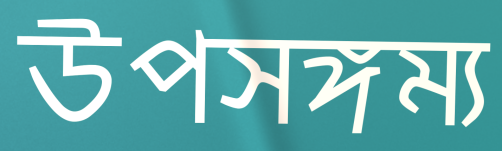
উপসঙ্গম্য